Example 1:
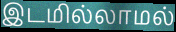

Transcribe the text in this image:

இடமில்லாமல்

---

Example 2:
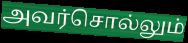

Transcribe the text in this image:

அவர்சொல்லும்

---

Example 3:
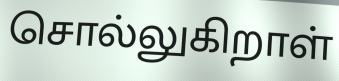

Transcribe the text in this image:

சொல்லுகிறாள்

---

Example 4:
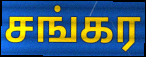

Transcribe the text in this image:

சங்கர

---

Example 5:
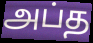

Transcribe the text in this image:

அப்த